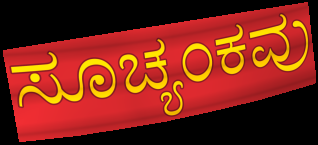
ಸೂಚ್ಯಂಕವು